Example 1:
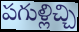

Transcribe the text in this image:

పగుళ్లిచ్చి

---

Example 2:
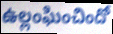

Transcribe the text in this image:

ఉల్లంఘించిందో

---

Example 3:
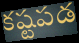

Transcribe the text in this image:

కష్టపడ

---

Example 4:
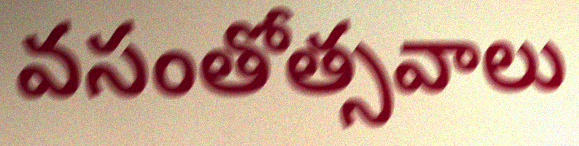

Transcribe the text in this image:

వసంతోత్సవాలు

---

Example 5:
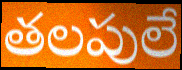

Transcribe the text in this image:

తలపులే